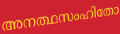
അനത്ഥസംഹിതോ